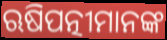
ଋଷିପତ୍ନୀମାନଙ୍କ